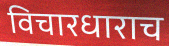
विचारधाराच